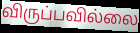
விருப்பவில்லை